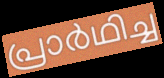
പ്രാർഥിച്ച